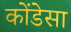
कोंडेसा